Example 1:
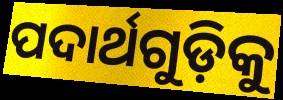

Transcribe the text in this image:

ପଦାର୍ଥଗୁଡ଼ିକୁ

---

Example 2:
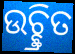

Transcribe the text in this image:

ଉଚ୍ଛ୍ରିତ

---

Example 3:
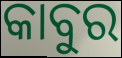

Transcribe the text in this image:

କାବୁର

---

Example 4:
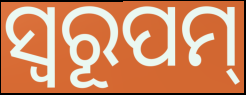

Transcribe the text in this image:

ସ୍ୱରୂପମ୍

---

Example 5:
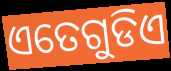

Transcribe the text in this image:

ଏତେଗୁଡିଏ